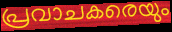
പ്രവാചകരെയും